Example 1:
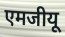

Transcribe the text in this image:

एमजीयू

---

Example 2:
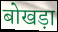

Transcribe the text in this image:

बोखड़ा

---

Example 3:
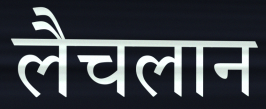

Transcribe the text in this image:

लैचलान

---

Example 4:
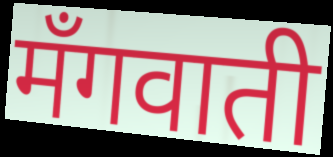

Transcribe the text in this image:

मँगवाती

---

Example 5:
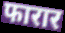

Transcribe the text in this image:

फारार